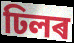
ঢিলৰ